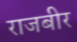
राजबीर